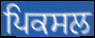
ਪਿਕਸਲ